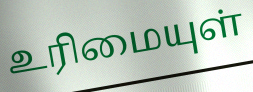
உரிமையுள்